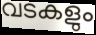
വടകളും